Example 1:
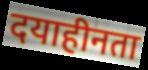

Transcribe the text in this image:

दयाहीनता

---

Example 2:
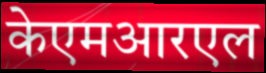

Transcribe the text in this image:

केएमआरएल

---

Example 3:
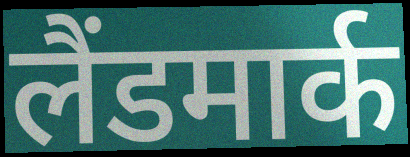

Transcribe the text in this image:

लैंडमार्क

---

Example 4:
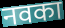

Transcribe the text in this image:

नवका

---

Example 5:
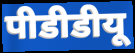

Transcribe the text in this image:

पीडीडीयू